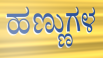
ಹಣ್ಣುಗಳ